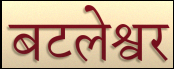
बटलेश्वर